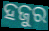
ହଜୁର